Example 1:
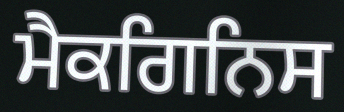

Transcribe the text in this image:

ਮੈਕਗਿਨਿਸ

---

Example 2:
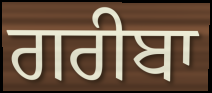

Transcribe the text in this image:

ਗਰੀਬਾ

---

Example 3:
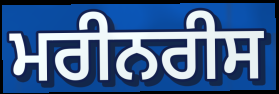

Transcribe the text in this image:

ਮਰੀਨਰੀਸ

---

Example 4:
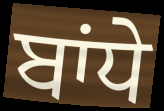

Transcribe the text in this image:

ਬਾਂਧੇ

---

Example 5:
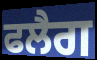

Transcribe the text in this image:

ਫਲੈਗ